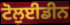
ਟੋਲੁਈਡੀਨ